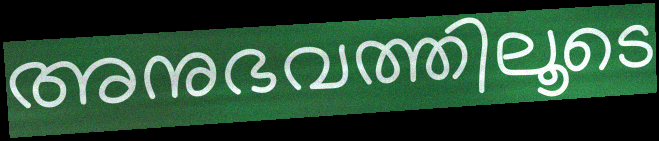
അനുഭവത്തിലൂടെ